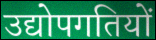
उद्योपगतियों